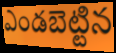
ఎండబెట్టిన